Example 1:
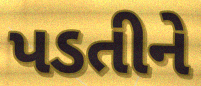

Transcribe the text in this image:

પડતીને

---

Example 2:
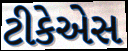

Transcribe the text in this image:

ટીકેએસ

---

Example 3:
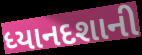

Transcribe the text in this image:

ધ્યાનદશાની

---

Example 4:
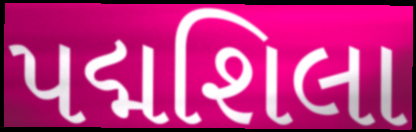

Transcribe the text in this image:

પદ્મશિલા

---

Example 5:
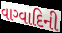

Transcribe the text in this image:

વાગ્વાદિની